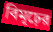
বিমূঢ়ের